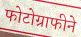
फोटोग्राफीने